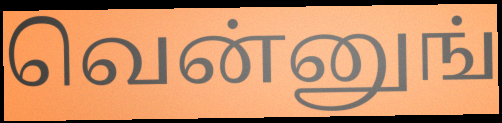
வென்னுங்